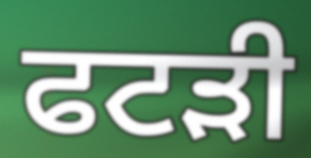
ਫਟੜੀ